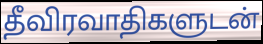
தீவிரவாதிகளுடன்